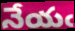
నేయఁ